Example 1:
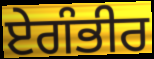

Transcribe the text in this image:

ਏਗੰਭੀਰ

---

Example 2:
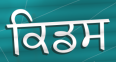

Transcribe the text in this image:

ਕਿਡਸ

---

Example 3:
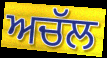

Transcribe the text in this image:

ਅਚੱਲ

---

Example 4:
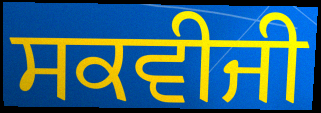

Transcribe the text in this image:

ਸਕਵੀਜੀ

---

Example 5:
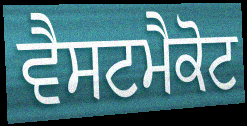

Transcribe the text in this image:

ਵੈਸਟਮੈਕੋਟ